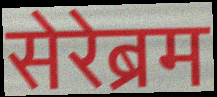
सेरेब्रम